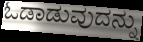
ಓಡಾಡುವುದನ್ನು